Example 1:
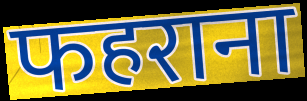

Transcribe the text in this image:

फहराना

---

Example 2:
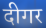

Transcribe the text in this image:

दीगर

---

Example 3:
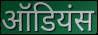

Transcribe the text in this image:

ऑडियंस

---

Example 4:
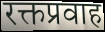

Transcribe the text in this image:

रक्तप्रवाह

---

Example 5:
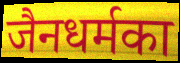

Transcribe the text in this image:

जैनधर्मका